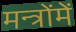
मन्त्रोंमें